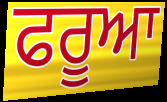
ਫਰੂਆ